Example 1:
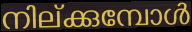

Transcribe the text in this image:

നില്ക്കുമ്പോൾ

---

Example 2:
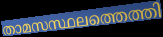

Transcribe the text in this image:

താമസസ്ഥലത്തെത്തി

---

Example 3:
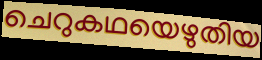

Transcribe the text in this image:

ചെറുകഥയെഴുതിയ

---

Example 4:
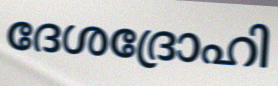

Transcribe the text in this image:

ദേശദ്രോഹി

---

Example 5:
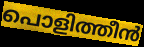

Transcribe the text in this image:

പൊളിത്തീൻ